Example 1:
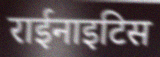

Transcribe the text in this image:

राईनाइटिस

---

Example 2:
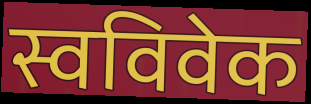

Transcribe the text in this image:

स्वविवेक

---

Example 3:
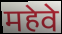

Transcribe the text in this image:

महेवे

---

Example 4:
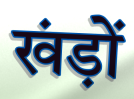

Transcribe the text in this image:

खंड़ों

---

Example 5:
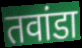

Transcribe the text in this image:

तवांडा